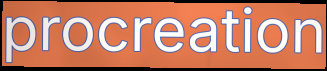
procreation